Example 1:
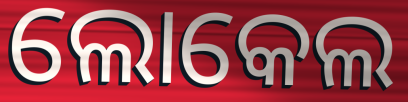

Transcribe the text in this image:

ଲୋକେଲ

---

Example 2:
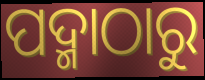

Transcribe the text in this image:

ପଦ୍ମାଠାରୁ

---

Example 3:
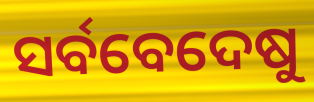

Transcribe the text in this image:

ସର୍ବବେଦେଷୁ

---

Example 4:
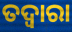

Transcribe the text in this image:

ତଦ୍ବାରା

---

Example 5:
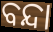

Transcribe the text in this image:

ବନ୍ଦା